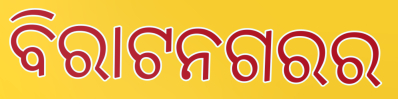
ବିରାଟନଗରର